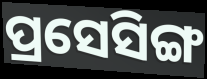
ପ୍ରସେସିଙ୍ଗ